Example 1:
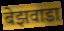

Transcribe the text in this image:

बेझवाडा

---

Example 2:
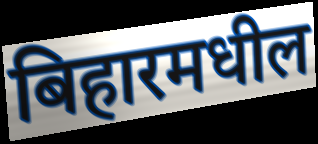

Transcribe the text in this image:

बिहारमधील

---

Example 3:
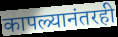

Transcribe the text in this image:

कापल्यानंतरही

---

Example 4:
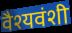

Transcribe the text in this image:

वैश्यवंशी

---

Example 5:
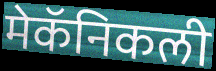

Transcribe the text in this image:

मेकॅनिकली